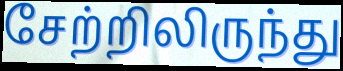
சேற்றிலிருந்து